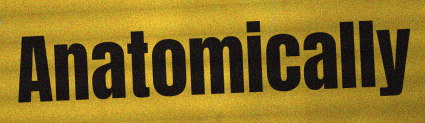
Anatomically